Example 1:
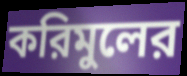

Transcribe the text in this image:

করিমুলের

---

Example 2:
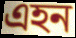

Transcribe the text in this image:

এহন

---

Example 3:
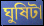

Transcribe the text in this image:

ঘুষিটা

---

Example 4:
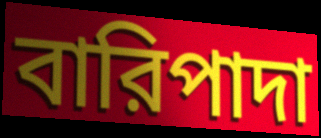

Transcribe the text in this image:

বারিপাদা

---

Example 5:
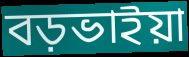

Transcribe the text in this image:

বড়ভাইয়া